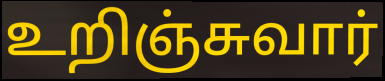
உறிஞ்சுவார்